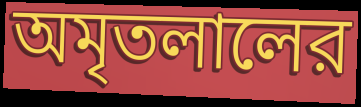
অমৃতলালের